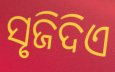
ସୃଜିଦିଏ